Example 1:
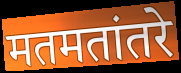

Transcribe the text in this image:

मतमतांतरे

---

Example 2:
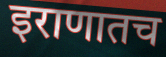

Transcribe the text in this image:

इराणातच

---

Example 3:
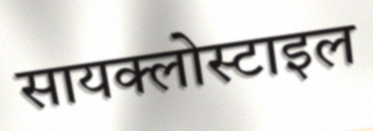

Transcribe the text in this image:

सायक्लोस्टाइल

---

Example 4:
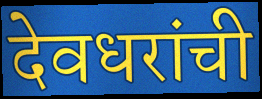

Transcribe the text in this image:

देवधरांची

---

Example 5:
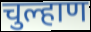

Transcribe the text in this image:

चुल्हाण